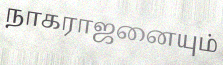
நாகராஜனையும்